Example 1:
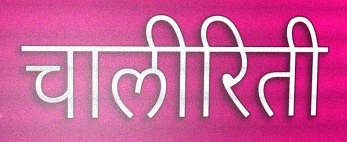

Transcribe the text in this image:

चालीरिती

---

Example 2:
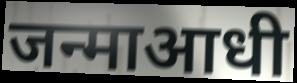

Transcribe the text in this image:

जन्माआधी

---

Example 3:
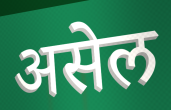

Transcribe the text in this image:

असेल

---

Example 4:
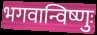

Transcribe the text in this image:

भगवान्विष्णुः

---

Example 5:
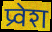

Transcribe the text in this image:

प्र्वेश